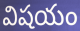
విషయం